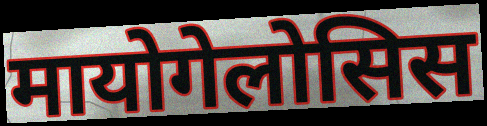
मायोगेलोसिस